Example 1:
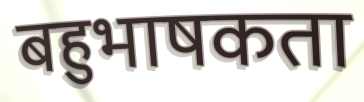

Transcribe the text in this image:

बहुभाषकता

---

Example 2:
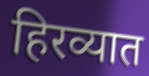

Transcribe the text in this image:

हिरव्यात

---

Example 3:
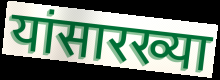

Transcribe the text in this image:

यांसारख्या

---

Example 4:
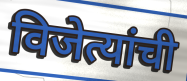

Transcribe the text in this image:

विजेत्यांची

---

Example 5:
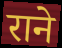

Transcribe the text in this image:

राने